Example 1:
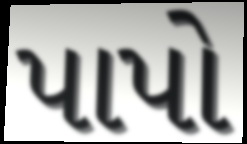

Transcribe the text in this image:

પાપો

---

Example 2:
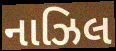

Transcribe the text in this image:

નાઝિલ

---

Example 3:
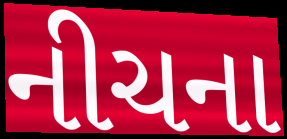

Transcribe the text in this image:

નીચના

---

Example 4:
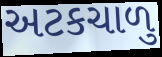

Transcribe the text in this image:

અટકચાળુ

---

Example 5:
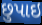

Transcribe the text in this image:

છુપાઇ